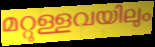
മറ്റുള്ളവയിലും